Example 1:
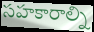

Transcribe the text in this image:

సహకారాల్ని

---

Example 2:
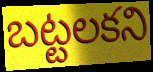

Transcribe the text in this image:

బట్టలకని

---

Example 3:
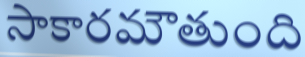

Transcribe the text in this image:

సాకారమౌతుంది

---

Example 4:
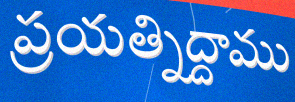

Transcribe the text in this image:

ప్రయత్నిద్దాము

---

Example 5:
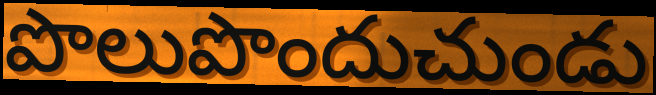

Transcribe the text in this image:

పొలుపొందుచుండు